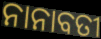
ନାନାବତୀ